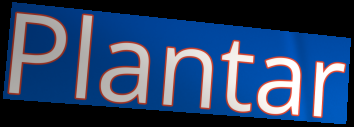
Plantar